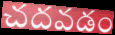
చదవడం